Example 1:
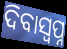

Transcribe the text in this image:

ଦିବାସ୍ଵପ୍ନ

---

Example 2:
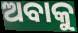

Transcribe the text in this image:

ଅବାକୁ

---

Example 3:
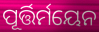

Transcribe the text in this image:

ପୂର୍ତ୍ତିର୍ମୟେନ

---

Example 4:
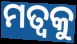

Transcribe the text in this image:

ମତ୍ୱକୁ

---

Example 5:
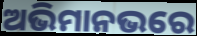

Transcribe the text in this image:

ଅଭିମାନଭରେ